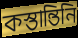
কস্তান্তিনি